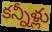
కన్నీళ్లు